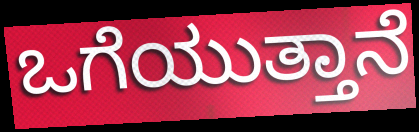
ಒಗೆಯುತ್ತಾನೆ